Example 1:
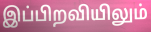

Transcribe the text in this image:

இப்பிறவியிலும்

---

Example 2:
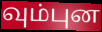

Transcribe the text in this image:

வும்புன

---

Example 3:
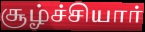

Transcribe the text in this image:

சூழ்ச்சியார்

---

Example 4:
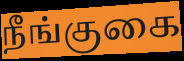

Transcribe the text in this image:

நீங்குகை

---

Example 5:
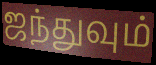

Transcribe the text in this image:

ஜந்துவும்